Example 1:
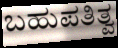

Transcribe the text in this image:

ಬಹುಪತಿತ್ವ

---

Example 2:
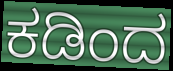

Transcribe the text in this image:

ಕಡಿಂದ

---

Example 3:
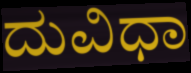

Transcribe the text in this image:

ದುವಿಧಾ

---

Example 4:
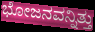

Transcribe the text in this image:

ಭೋಜನವನ್ನಿತ್ತು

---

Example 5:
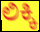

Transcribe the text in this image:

ಲಿಕ್ಕಿ